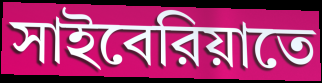
সাইবেরিয়াতে